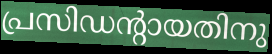
പ്രസിഡന്റായതിനു